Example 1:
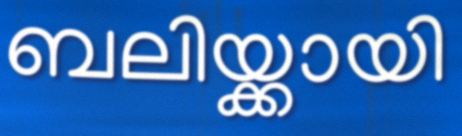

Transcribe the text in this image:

ബലിയ്ക്കായി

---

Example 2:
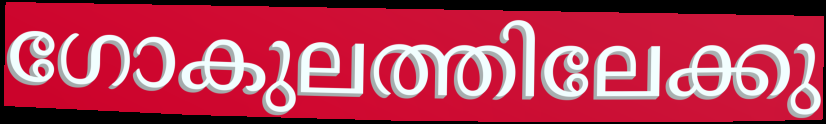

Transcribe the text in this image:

ഗോകുലത്തിലേക്കു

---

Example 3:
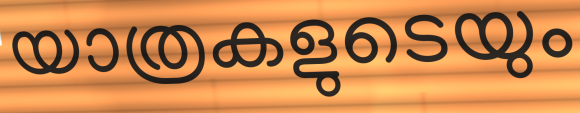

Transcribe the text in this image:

യാത്രകളുടെയും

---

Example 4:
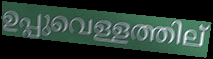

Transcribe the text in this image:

ഉപ്പുവെള്ളത്തില്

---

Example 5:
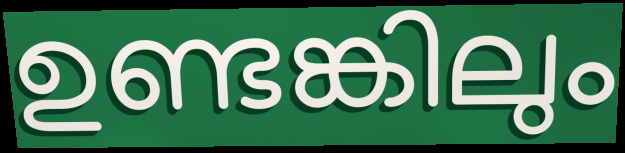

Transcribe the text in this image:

ഉണ്ടങ്കിലും